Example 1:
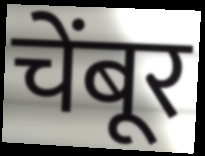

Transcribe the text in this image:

चेंबूर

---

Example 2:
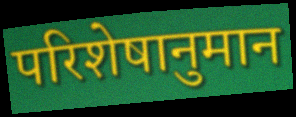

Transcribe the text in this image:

परिशेषानुमान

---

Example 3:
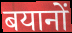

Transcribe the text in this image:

बयानों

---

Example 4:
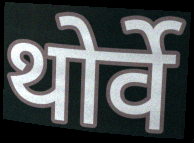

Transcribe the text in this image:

थोर्वे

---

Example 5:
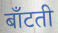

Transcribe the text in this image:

बाँटती